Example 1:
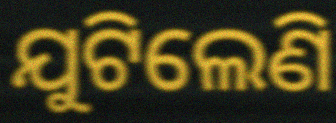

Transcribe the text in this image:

ଯୁଟିଲେଣି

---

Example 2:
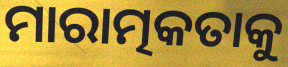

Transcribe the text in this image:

ମାରାତ୍ମକତାକୁ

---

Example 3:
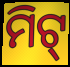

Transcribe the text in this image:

ମିଟ୍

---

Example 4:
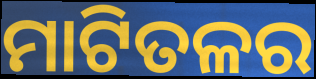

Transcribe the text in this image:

ମାଟିତଳର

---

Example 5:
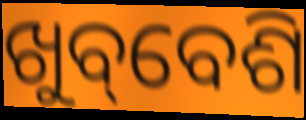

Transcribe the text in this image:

ଖୁବ୍‌ବେଶି